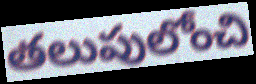
తలుపులోంచి